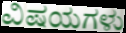
ವಿಷಯಗಳು